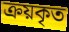
ক্রয়কৃত